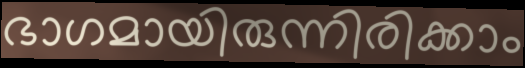
ഭാഗമായിരുന്നിരിക്കാം